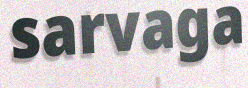
sarvaga